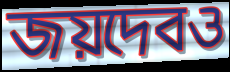
জয়দেবও